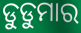
ଡୁଡୁମାର